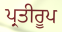
ਪ੍ਰਤੀਰੂਪ